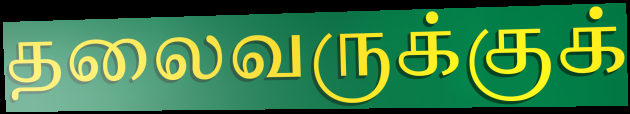
தலைவருக்குக்